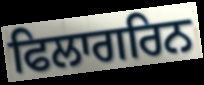
ਫਿਲਾਗਰਿਨ